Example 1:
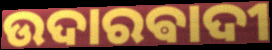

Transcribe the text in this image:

ଉଦାରଵାଦୀ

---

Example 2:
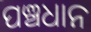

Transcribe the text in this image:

ପଞ୍ଚଧାନ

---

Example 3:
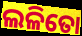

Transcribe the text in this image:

ଲଳିତୋ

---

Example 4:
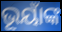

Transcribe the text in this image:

ଭୂୟାଁଙ୍କ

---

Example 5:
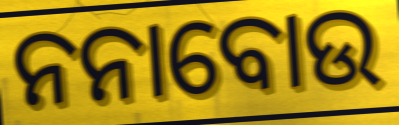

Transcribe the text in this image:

ନନାବୋଉ